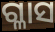
ଗ୍ଳାସ